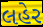
લહેર